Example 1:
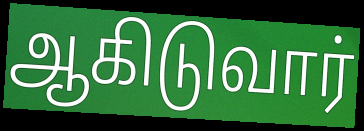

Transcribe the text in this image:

ஆகிடுவார்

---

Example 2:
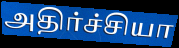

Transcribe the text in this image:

அதிர்ச்சியா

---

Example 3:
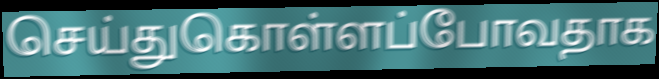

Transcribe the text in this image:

செய்துகொள்ளப்போவதாக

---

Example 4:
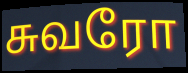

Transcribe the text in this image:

சுவரோ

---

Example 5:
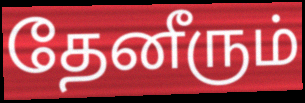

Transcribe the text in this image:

தேனீரும்